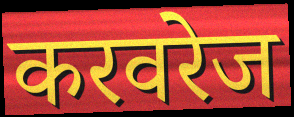
करवरेज